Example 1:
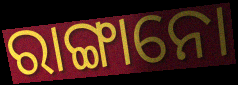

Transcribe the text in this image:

ରାଙ୍ଗାନୋ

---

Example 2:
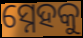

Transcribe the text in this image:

ସ୍ନେହକୁ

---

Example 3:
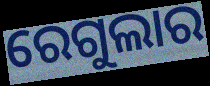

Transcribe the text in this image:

ରେଗୁଲାର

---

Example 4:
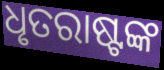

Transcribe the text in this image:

ଧୃତରାଷ୍ଟଙ୍କ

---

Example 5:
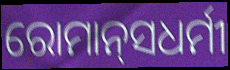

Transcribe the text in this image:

ରୋମାନ୍‌ସଧର୍ମୀ